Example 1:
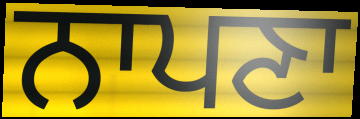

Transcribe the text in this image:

ਨਾਪਣਾ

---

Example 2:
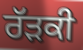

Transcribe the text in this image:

ਰੱੜਕੀ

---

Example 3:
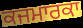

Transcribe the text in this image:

ਕਜਮਾਰਕਾ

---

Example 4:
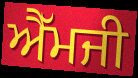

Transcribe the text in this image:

ਐੱਮਜੀ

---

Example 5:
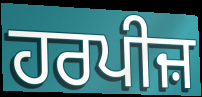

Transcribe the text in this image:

ਹਰਪੀਜ਼